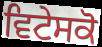
ਵਿਟੇਸਕੋ